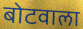
बोटवाला